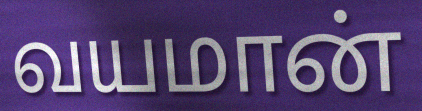
வயமான்